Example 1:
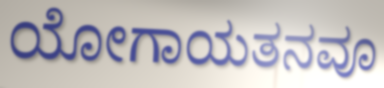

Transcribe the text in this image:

ಯೋಗಾಯತನವೂ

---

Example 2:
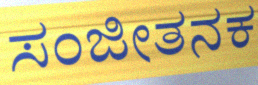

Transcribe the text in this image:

ಸಂಜೀತನಕ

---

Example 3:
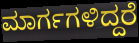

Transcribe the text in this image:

ಮಾರ್ಗಗಳಿದ್ದರೆ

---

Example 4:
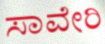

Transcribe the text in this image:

ಸಾವೇರಿ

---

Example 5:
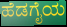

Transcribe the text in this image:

ಹೆಡಗೈಯ